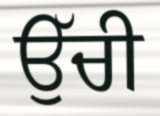
ਉੱਚੀ